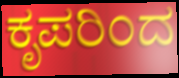
ಕೃಪರಿಂದ